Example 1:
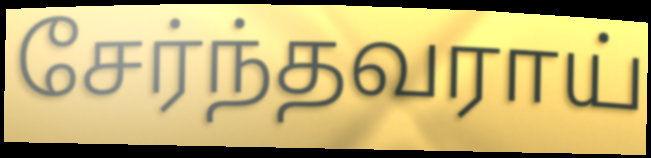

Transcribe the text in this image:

சேர்ந்தவராய்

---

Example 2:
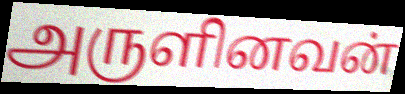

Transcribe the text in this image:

அருளினவன்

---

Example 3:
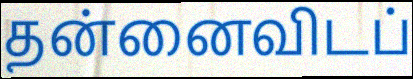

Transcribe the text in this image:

தன்னைவிடப்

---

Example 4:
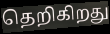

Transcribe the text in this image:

தெறிகிறது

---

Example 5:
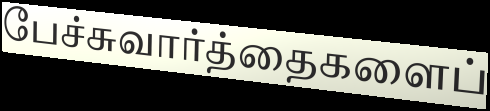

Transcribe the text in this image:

பேச்சுவார்த்தைகளைப்